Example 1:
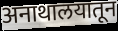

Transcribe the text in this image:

अनाथालयातून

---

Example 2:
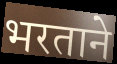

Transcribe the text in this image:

भरताने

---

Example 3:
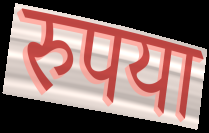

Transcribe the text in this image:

रुपया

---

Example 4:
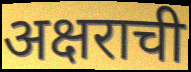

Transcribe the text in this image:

अक्षराची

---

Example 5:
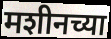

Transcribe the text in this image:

मशीनच्या